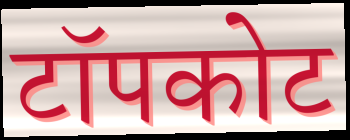
टॉपकोट